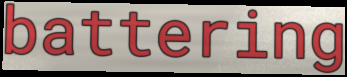
battering